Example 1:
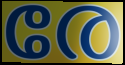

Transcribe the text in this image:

രേ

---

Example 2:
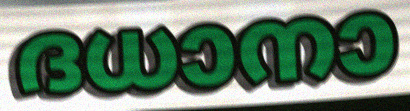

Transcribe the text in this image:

ദധാനാ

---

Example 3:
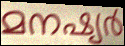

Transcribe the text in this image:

മനഷ്യർ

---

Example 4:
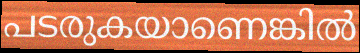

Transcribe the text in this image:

പടരുകയാണെങ്കിൽ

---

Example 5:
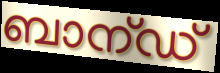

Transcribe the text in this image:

ബാന്ഡ്